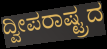
ದ್ವೀಪರಾಷ್ಟ್ರದ